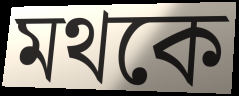
মথকে